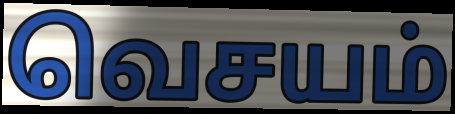
வெசயம்